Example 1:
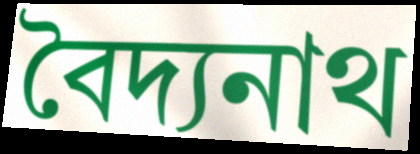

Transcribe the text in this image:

বৈদ্যনাথ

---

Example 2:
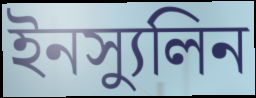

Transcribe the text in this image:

ইনস্যুলিন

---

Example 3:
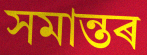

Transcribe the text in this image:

সমান্তৰ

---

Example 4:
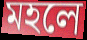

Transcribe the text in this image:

মহলে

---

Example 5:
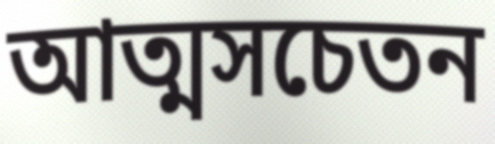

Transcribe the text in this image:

আত্মসচেতন